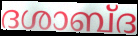
ദശാബ്ദ